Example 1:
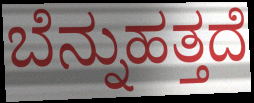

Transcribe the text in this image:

ಬೆನ್ನುಹತ್ತದೆ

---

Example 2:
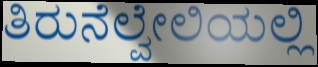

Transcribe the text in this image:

ತಿರುನೆಲ್ವೇಲಿಯಲ್ಲಿ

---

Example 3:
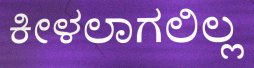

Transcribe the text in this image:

ಕೀಳಲಾಗಲಿಲ್ಲ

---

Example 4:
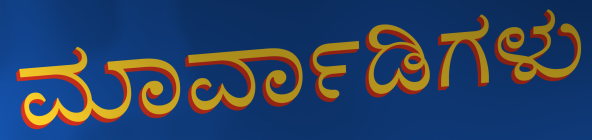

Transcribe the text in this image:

ಮಾರ್ವಾಡಿಗಳು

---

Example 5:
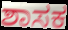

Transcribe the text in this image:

ಶಾಸಕ